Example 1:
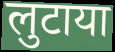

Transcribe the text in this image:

लुटाया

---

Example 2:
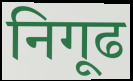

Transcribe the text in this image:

निगूढ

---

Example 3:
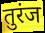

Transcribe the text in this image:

तुरंज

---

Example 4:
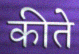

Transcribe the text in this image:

कीते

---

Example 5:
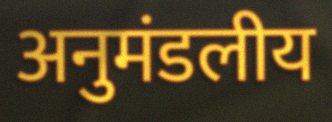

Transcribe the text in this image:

अनुमंडलीय